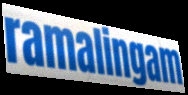
ramalingam